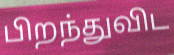
பிறந்துவிட